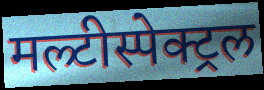
मल्टीस्पेक्ट्रल